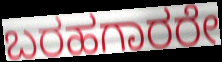
ಬರಹಗಾರರೇ